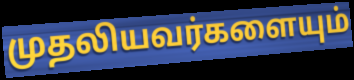
முதலியவர்களையும்